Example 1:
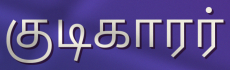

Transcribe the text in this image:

குடிகாரர்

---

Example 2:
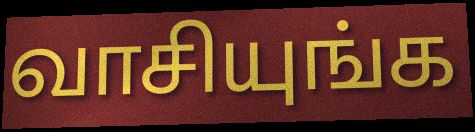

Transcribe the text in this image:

வாசியுங்க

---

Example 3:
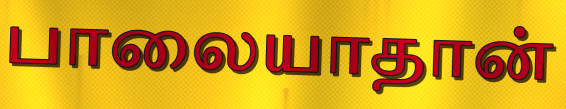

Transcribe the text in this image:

பாலையாதான்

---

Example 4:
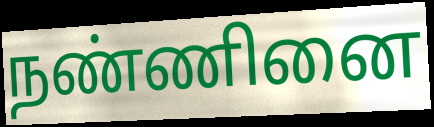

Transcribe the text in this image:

நண்ணினை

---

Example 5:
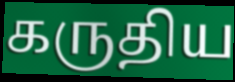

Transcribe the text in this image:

கருதிய